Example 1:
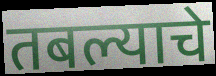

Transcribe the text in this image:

तबल्याचे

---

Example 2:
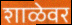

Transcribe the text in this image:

शाळेवर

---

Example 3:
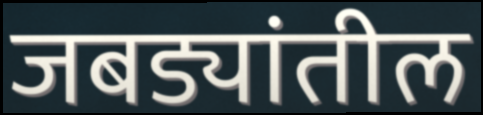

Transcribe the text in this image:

जबड्यांतील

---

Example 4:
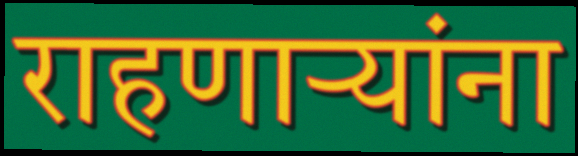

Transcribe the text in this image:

राहणाऱ्यांना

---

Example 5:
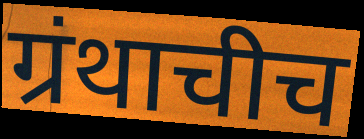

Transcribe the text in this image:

ग्रंथाचीच